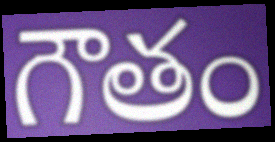
గౌతం